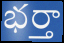
భర్తా